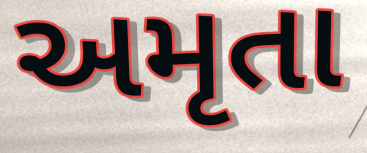
અમૃતા